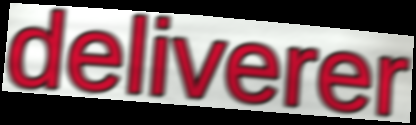
deliverer